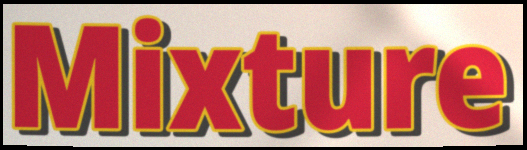
Mixture